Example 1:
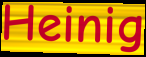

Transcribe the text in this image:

Heinig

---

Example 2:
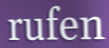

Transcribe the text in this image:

rufen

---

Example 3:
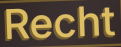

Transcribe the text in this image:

Recht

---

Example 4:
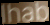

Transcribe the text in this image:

Ihab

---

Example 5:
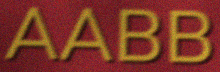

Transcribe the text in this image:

AABB